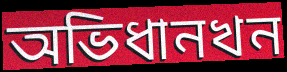
অভিধানখন